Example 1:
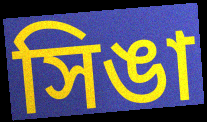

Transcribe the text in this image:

সিঙা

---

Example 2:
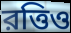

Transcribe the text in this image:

রত্তিও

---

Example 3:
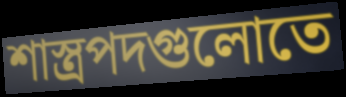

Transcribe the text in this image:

শাস্ত্রপদগুলোতে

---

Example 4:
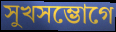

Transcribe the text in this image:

সুখসম্ভোগে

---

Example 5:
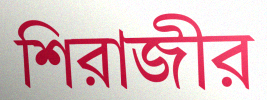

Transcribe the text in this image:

শিরাজীর